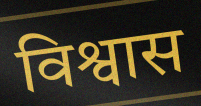
विश्वास